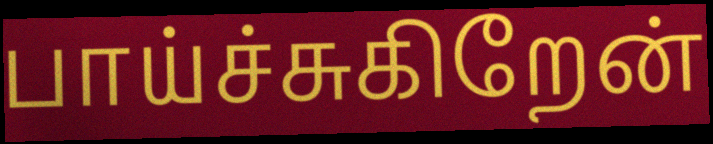
பாய்ச்சுகிறேன்